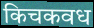
किचकवध